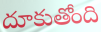
దూకుతోంది